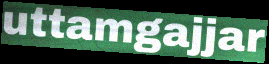
uttamgajjar